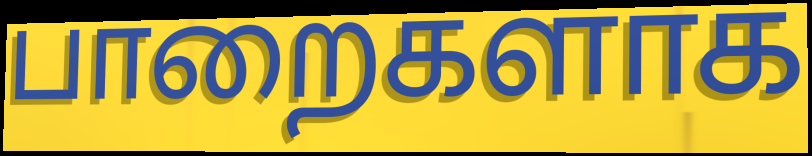
பாறைகளாக